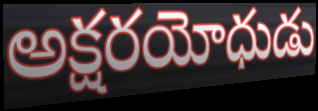
అక్షరయోధుడు